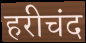
हरीचंद